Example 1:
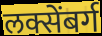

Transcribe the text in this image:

लक्सेंबर्ग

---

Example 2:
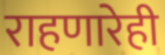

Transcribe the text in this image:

राहणारेही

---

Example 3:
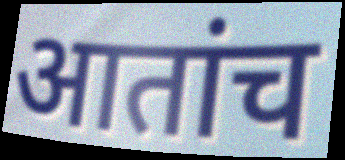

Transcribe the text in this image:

आतांच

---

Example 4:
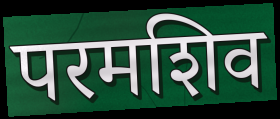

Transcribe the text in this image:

परमशिव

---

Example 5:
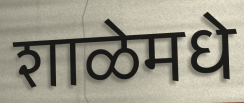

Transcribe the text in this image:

शाळेमधे